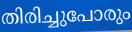
തിരിച്ചുപോരും